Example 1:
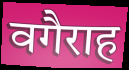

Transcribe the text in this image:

वगैराह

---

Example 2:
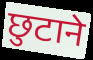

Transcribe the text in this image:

छुटाने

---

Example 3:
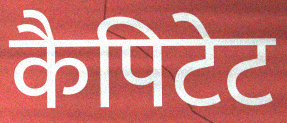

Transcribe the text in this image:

कैपिटेट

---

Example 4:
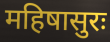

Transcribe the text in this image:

महिषासुरः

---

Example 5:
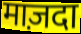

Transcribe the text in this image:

माज़दा